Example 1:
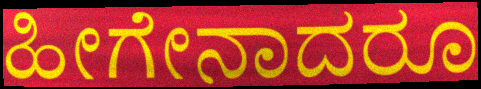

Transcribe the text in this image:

ಹೀಗೇನಾದರೂ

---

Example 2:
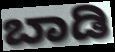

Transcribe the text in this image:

ಬಾಡಿ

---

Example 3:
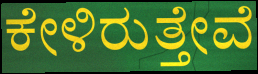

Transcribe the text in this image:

ಕೇಳಿರುತ್ತೇವೆ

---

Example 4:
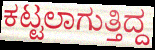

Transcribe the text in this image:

ಕಟ್ಟಲಾಗುತ್ತಿದ್ದ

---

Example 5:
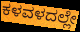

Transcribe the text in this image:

ಕಳವಳದಲ್ಲೇ